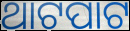
ଥାଟପାଟ